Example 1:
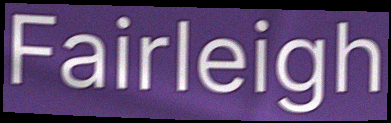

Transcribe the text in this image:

Fairleigh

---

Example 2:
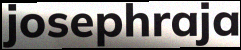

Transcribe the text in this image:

josephraja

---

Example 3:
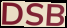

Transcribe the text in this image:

DSB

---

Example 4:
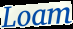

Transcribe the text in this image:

Loam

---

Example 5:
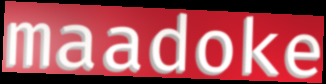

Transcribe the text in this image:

maadoke